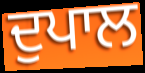
ਦੁਪਾਲ